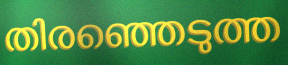
തിരഞ്ഞെടുത്ത